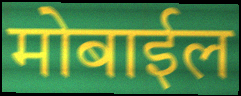
मोबाईल